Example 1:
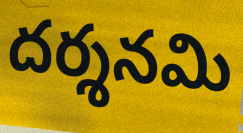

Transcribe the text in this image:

దర్శనమి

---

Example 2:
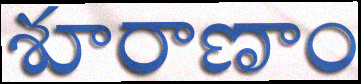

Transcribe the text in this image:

శూరాణాం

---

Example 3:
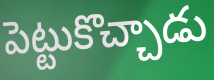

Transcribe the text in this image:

పెట్టుకొచ్చాడు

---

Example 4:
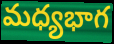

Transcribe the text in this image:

మధ్యభాగ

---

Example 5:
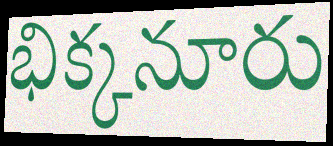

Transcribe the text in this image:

భిక్కనూరు